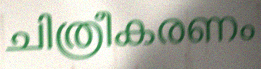
ചിത്രീകരണം